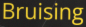
Bruising